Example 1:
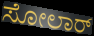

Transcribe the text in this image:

ಸೋಲಾರ್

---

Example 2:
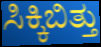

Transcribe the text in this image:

ಸಿಕ್ಕಿಬಿತ್ತು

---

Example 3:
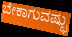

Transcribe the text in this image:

ಬೇಕಾಗುವಷ್ಟು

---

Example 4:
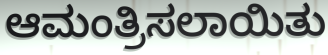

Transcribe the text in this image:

ಆಮಂತ್ರಿಸಲಾಯಿತು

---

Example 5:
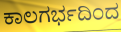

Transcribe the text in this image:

ಕಾಲಗರ್ಭದಿಂದ